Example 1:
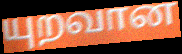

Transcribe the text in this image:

யுறவான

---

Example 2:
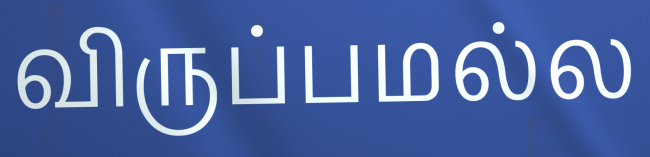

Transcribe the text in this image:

விருப்பமல்ல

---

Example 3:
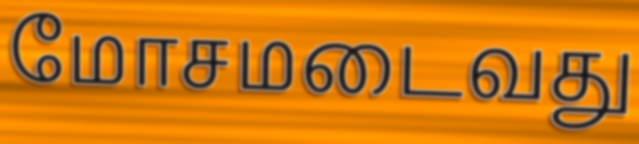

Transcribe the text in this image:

மோசமடைவது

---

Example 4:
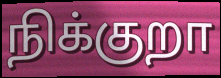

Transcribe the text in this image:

நிக்குறா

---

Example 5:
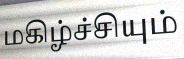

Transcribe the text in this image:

மகிழ்ச்சியும்